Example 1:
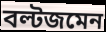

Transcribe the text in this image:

বল্টজমেন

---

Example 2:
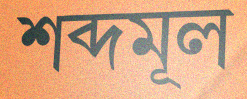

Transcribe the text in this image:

শব্দমূল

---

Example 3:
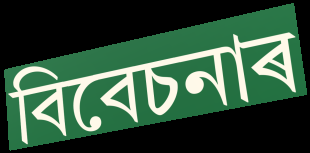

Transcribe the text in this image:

বিবেচনাৰ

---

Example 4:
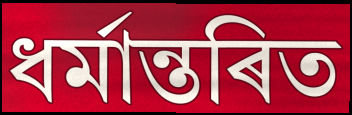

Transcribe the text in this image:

ধৰ্মান্তৰিত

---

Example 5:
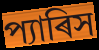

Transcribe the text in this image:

প্যাৰিস